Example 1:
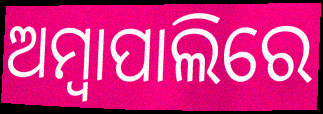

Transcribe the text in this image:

ଅମ୍ବାପାଲିରେ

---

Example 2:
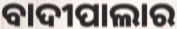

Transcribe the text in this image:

ବାଦୀପାଲାର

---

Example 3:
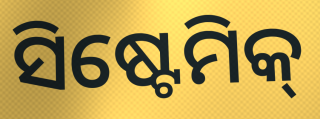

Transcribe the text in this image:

ସିଷ୍ଟେମିକ୍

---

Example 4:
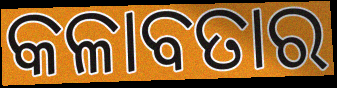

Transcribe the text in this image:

କଳାବତାର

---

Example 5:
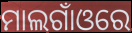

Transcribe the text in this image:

ମାଲଗାଁଓରେ